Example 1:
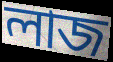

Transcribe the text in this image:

লাজ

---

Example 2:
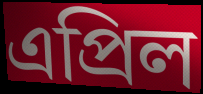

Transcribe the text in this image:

এপ্রিল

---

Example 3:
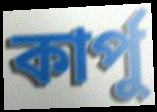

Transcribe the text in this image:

কার্পু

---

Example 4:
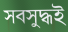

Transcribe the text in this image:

সবসুদ্ধই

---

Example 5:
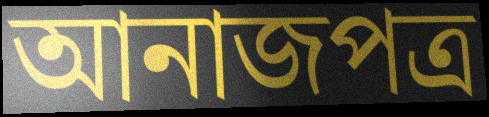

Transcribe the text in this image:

আনাজপত্র